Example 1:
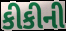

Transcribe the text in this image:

કીકીની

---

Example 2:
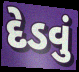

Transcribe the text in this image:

દેડવું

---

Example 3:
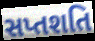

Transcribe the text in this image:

સપ્તશતિ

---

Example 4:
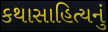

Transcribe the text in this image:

કથાસાહિત્યનું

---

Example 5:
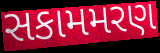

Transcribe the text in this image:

સકામમરણ